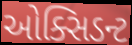
ઓક્સિડન્ટ